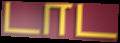
டாட